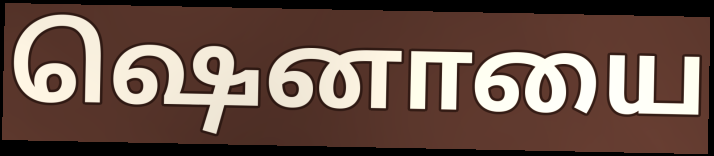
ஷெனாயை